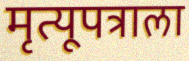
मृत्यूपत्राला